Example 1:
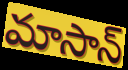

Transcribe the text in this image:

మాసాన్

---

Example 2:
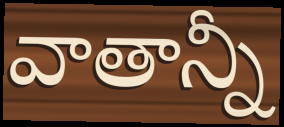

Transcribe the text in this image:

వాతాన్నీ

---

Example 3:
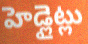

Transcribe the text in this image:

హెడ్లైట్లు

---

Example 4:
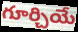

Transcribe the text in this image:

గూర్చియే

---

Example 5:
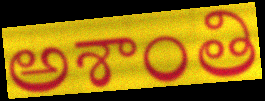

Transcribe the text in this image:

అశాంతి